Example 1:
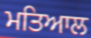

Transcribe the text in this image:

ਮਤਿਆਲ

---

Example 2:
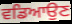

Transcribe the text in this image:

ਵਡਿਆਉਣ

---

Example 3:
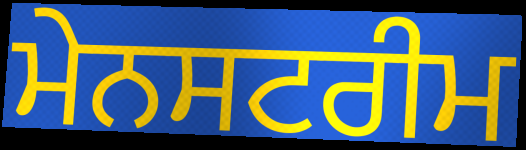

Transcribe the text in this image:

ਮੇਨਸਟਰੀਮ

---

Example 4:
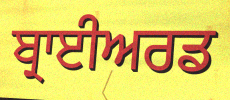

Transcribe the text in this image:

ਬ੍ਰਾਈਅਰਡ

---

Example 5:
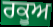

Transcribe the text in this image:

ਰਕੂਅ